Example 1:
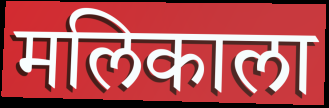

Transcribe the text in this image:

मलिकाला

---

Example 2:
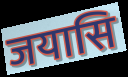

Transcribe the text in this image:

जयासि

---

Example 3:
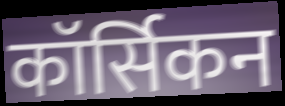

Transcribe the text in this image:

कॉर्सिकन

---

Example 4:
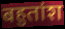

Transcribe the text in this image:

बहुतांश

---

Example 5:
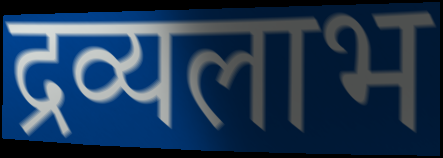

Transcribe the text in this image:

द्रव्यलाभ